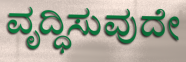
ವೃದ್ಧಿಸುವುದೇ